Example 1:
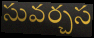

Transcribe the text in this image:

సువర్చస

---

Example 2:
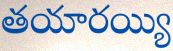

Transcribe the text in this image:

తయారయ్యి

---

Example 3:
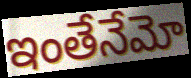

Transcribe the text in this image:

ఇంతేనేమో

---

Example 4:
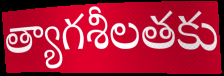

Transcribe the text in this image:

త్యాగశీలతకు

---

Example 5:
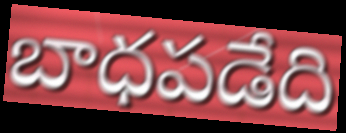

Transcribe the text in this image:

బాధపడేది